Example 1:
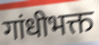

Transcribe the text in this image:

गांधीभक्त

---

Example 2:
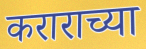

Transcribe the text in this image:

कराराच्या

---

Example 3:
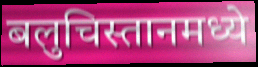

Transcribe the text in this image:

बलुचिस्तानमध्ये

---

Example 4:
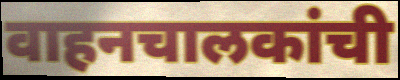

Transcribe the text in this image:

वाहनचालकांची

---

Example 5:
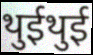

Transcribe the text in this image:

थुईथुई